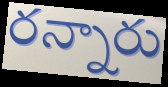
రన్నారు